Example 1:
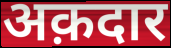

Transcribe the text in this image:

अक़दार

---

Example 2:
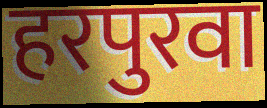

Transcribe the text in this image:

हरपुरवा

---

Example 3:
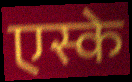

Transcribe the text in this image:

एस्के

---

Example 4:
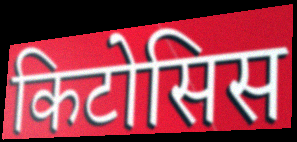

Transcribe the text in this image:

किटोसिस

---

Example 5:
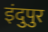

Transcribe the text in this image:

इंदुपुर